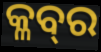
କ୍ଳବ୍‍ର